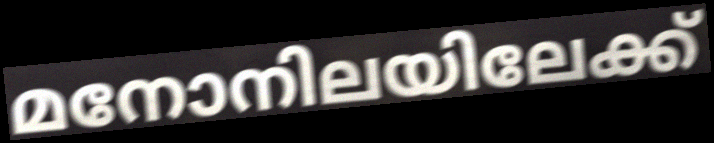
മനോനിലയിലേക്ക്